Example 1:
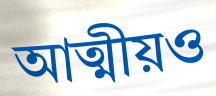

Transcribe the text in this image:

আত্মীয়ও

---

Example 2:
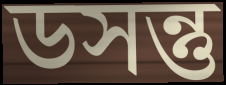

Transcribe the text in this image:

ডসন্তু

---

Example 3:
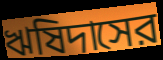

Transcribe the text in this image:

ঋষিদাসের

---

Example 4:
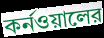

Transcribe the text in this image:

কর্নওয়ালের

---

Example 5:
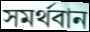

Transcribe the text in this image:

সমর্থবান